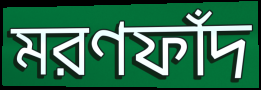
মরণফাঁদ